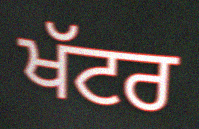
ਖੱਟਰ